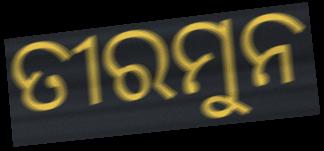
ତୀରମୁନ